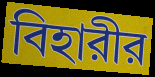
বিহারীর